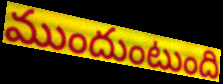
ముందుంటుంది